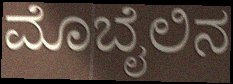
ಮೊಬೈಲಿನ